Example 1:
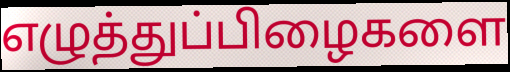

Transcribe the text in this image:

எழுத்துப்பிழைகளை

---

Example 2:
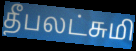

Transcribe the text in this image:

தீபலட்சுமி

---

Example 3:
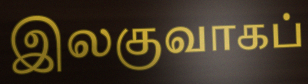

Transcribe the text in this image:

இலகுவாகப்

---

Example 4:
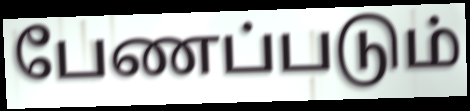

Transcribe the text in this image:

பேணப்படும்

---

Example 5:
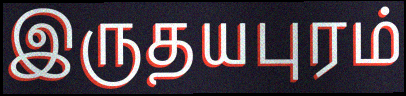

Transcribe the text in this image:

இருதயபுரம்